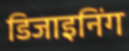
डिजाइनिंग